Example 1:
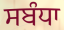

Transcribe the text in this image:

ਸਬੰਧਾ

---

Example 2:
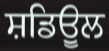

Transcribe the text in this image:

ਸ਼ਡਿਉੂਲ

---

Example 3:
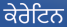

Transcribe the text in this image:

ਕੇਰੇਟਿਨ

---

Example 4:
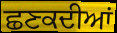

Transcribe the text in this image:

ਛਣਕਦੀਆਂ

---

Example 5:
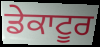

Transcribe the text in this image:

ਡੇਕਾਟੂਰ